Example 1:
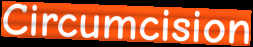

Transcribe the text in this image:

Circumcision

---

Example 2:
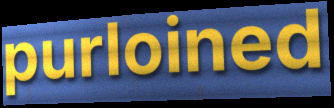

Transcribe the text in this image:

purloined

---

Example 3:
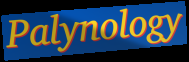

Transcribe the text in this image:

Palynology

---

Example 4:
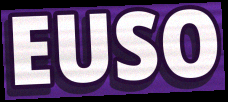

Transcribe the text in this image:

EUSO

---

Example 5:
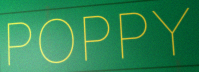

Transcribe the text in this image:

POPPY